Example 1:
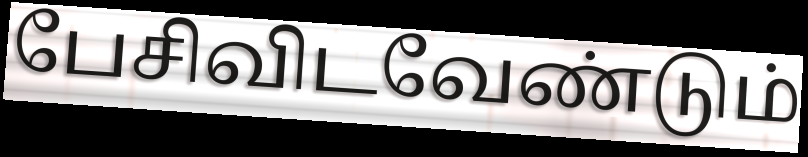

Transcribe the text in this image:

பேசிவிடவேண்டும்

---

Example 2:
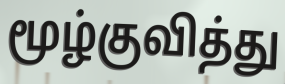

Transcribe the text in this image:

மூழ்குவித்து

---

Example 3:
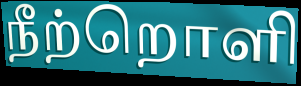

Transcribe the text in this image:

நீற்றொளி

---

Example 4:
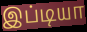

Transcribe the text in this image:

இப்டியா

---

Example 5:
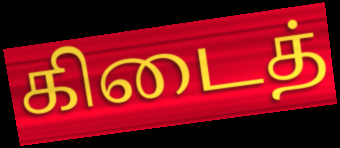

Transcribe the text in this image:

கிடைத்